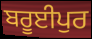
ਬਰੂਈਪੁਰ